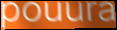
pouura